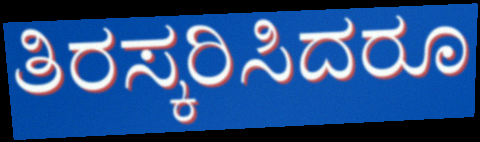
ತಿರಸ್ಕರಿಸಿದರೂ